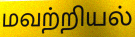
மவற்றியல்